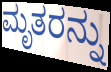
ಮೃತರನ್ನು